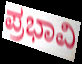
ಪ್ರಭಾವಿ